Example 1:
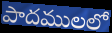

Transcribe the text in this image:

పాదములలో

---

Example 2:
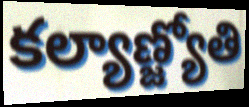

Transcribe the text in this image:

కల్యాణ్జ్యోతి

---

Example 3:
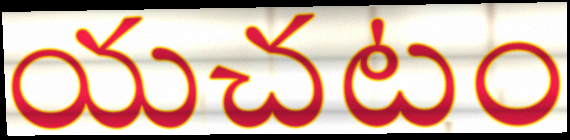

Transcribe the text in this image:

యచటం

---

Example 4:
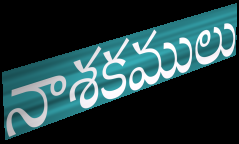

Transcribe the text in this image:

నాశకములు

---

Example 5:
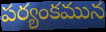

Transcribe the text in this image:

పర్యంకమున